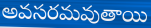
అవసరమవుతాయి